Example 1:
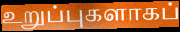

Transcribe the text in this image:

உறுப்புகளாகப்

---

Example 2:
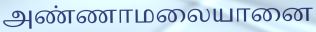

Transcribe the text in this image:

அண்ணாமலையானை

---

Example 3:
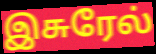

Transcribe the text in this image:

இசுரேல்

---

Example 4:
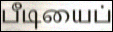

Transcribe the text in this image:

பீடியைப்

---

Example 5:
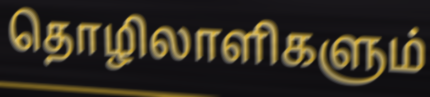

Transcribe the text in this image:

தொழிலாளிகளும்